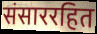
संसाररहित